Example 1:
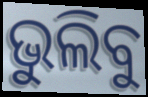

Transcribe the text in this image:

ଭୁଲିବୁ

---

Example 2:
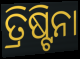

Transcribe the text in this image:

ତ୍ରିଷ୍ଟିନା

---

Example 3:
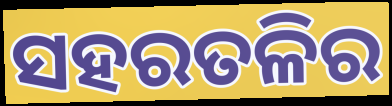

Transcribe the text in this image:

ସହରତଳିର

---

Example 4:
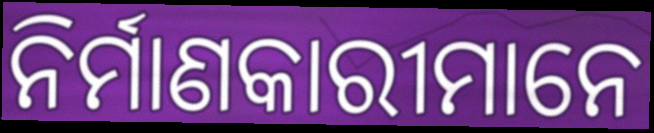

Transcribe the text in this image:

ନିର୍ମାଣକାରୀମାନେ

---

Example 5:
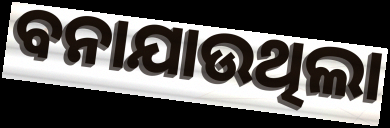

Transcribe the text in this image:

ବନାଯାଉଥିଲା